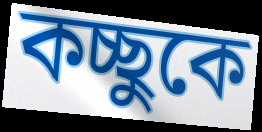
কচ্ছুকে